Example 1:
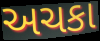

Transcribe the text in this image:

અચકા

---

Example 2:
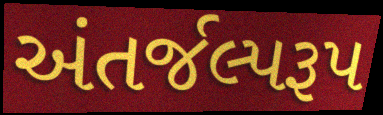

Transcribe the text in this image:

અંતર્જલ્પરૂપ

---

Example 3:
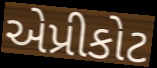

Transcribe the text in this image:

એપ્રીકોટ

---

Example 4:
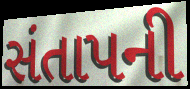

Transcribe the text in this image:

સંતાપની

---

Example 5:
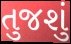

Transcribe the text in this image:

તુજશું